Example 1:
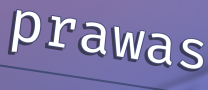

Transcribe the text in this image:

prawas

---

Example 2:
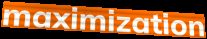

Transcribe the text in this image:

maximization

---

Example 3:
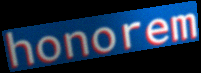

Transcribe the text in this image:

honorem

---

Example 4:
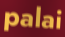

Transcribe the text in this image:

palai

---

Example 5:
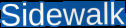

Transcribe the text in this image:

Sidewalk